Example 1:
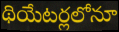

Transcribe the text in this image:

థియేటర్లలోనూ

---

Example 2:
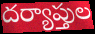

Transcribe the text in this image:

దర్యాప్తుల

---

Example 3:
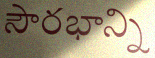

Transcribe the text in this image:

సౌరభాన్ని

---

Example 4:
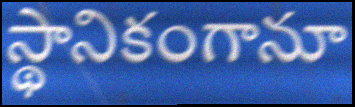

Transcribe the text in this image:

స్థానికంగానూ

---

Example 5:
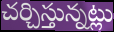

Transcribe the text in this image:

చర్చిస్తున్నట్లు